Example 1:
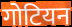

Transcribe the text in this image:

गोटियन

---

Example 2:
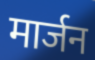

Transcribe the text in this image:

मार्जन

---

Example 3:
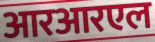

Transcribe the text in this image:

आरआरएल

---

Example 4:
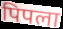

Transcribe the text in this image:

पिपला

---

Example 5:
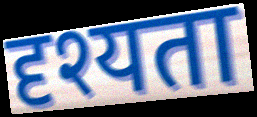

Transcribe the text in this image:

दृश्यता